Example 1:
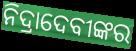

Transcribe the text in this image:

ନିଦ୍ରାଦେବୀଙ୍କର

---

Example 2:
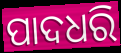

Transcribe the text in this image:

ପାଦଧରି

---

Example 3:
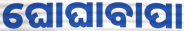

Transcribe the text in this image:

ଘୋଘାବାପା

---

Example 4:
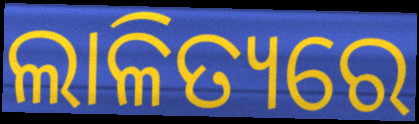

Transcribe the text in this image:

ଲାଳିତ୍ୟରେ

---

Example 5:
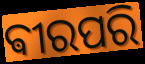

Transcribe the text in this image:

ଵୀରପରି